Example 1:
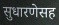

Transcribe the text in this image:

सुधारणेसह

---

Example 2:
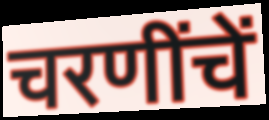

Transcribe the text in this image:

चरणींचें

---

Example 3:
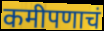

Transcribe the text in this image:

कमीपणाचं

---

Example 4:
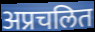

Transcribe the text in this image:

अप्रचलित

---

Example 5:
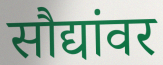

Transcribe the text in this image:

सौद्यांवर